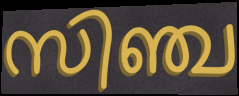
സിഞ്ച